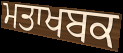
ਮਤਾਖਬਕ